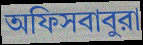
অফিসবাবুরা